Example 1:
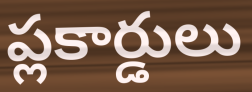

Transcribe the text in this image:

ప్లకార్డులు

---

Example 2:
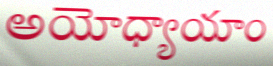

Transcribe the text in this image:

అయోధ్యాయాం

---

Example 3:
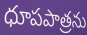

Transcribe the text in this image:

ధూపపాత్రను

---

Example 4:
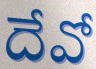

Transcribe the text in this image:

దేవో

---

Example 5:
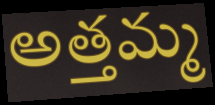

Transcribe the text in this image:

అత్తమ్మ